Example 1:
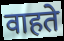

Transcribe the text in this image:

वाहते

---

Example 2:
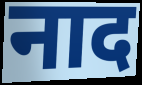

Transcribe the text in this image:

नाद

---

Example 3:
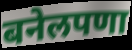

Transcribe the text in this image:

बनेलपणा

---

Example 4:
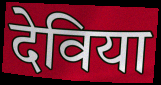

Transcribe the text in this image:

देविया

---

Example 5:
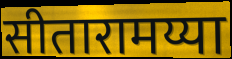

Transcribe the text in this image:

सीतारामय्या